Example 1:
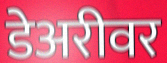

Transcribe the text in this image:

डेअरीवर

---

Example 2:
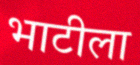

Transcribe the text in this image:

भाटीला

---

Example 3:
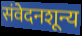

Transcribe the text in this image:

संवेदनशून्य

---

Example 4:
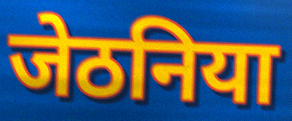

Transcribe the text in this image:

जेठनिया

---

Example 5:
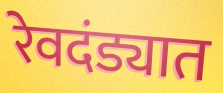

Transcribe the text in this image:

रेवदंड्यात